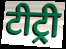
टीट्री